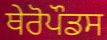
ਥੇਰੋਪੌਡਸ